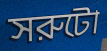
সৰুটো